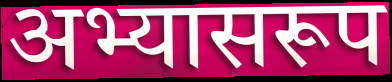
अभ्यासरूप